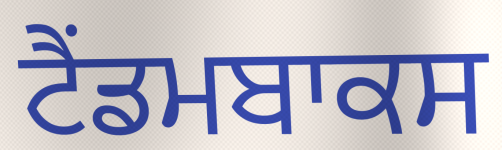
ਟੈਂਡਮਬਾਕਸ